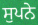
ਸੁਪਨੇ